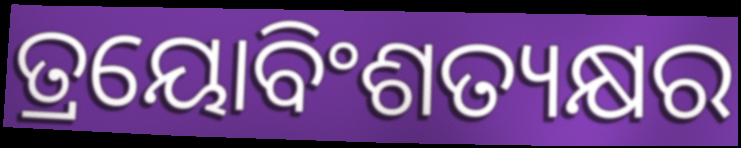
ତ୍ରୟୋବିଂଶତ୍ୟକ୍ଷର